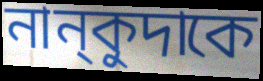
নান্‌কুদাকে